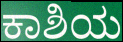
ಕಾಶಿಯ